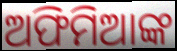
ଅଫିମିଆଙ୍କ